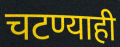
चटण्याही